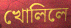
খোলিলে